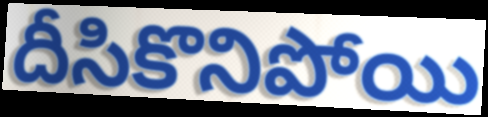
దీసికొనిపోయి